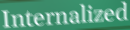
Internalized